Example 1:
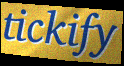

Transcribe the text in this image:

tickify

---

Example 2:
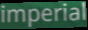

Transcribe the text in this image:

imperial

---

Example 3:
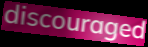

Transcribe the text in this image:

discouraged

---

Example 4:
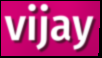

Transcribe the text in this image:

vijay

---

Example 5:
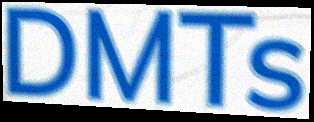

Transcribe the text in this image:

DMTs